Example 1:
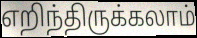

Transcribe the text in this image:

எறிந்திருக்கலாம்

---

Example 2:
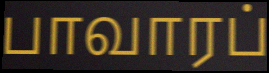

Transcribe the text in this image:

பாவாரப்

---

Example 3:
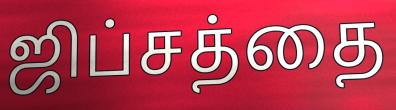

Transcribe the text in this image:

ஜிப்சத்தை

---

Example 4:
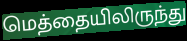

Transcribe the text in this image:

மெத்தையிலிருந்து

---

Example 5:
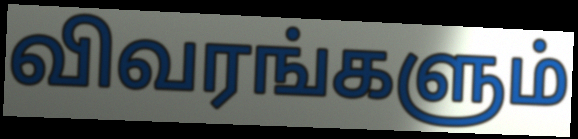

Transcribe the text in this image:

விவரங்களும்